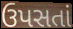
ઉપસતાં